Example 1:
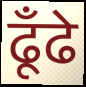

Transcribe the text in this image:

ढूँढे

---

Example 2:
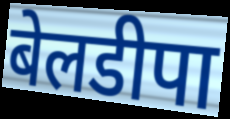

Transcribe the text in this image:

बेलडीपा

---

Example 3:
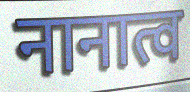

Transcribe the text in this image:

नानात्व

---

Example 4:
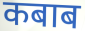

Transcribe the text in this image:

कबाब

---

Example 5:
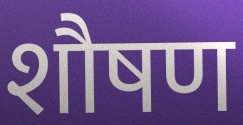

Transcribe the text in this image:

शौषण